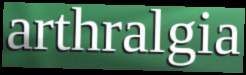
arthralgia